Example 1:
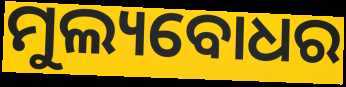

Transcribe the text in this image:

ମୁଲ୍ୟବୋଧର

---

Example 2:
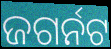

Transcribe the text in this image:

ଜଗର୍ନଟ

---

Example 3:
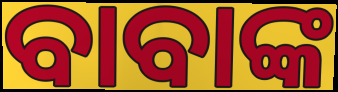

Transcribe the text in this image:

ବାବାଙ୍କ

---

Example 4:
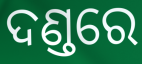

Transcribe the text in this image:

ଦଣ୍ଡରେ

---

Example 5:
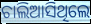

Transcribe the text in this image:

ଚାଲିଆସିଥିଲେ